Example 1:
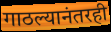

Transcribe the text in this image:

गाठल्यानंतरही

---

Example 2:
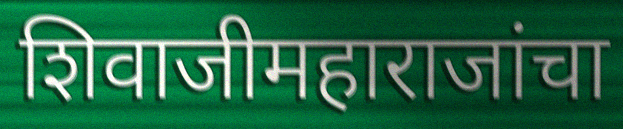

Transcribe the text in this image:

शिवाजीमहाराजांचा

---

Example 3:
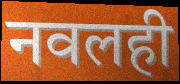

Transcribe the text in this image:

नवलही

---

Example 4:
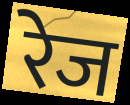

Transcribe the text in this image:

रेज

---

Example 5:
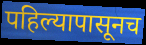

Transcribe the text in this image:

पहिल्यापासूनच